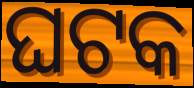
ଘଟକ